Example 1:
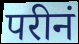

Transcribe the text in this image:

परीनं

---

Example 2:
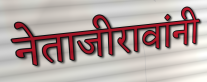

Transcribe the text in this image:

नेताजीरावांनी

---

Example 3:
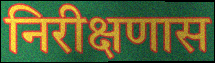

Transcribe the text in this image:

निरीक्षणास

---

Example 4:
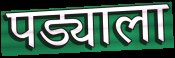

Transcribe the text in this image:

पड्याला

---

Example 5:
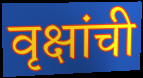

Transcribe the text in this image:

वृक्षांची